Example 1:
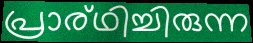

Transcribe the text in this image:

പ്രാര്ഥിച്ചിരുന്ന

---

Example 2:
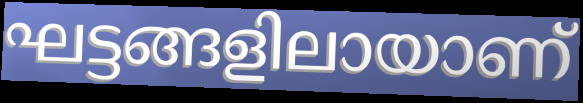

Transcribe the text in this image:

ഘട്ടങ്ങളിലായാണ്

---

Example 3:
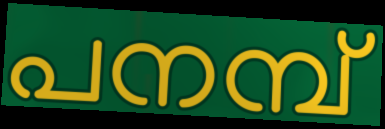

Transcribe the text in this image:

പനമ്പ്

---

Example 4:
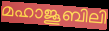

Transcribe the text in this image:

മഹാജൂബിലി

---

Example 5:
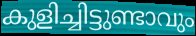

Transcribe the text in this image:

കുളിച്ചിട്ടുണ്ടാവും